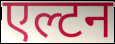
एल्टन